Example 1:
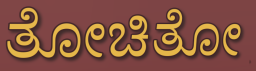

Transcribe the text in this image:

ತೋಚಿತೋ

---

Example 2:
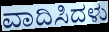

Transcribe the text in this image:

ವಾದಿಸಿದಳು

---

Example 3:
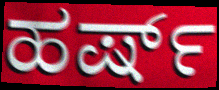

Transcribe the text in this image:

ಹರ್ಷ್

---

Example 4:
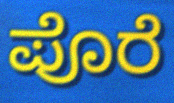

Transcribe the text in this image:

ಪೊರೆ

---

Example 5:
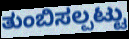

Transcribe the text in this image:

ತುಂಬಿಸಲ್ಪಟ್ಟು